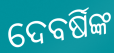
ଦେବର୍ଷିଙ୍କ